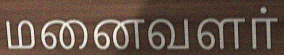
மனைவளர்